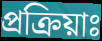
প্রক্রিয়াঃ